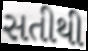
સતીથી